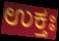
ಉಕ್ತಃ